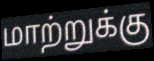
மாற்றுக்கு